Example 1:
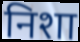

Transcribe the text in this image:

निशा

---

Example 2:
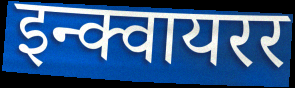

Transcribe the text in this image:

इन्क्वायरर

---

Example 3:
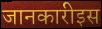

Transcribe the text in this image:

जानकारीइस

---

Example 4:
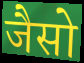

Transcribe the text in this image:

जैसो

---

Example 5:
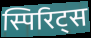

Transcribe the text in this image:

स्पिरिट्स